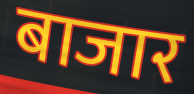
बाजार